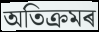
অতিক্ৰমৰ